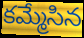
కమ్మేసిన